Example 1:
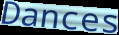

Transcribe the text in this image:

Dances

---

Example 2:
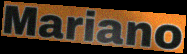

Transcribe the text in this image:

Mariano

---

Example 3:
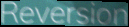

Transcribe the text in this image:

Reversion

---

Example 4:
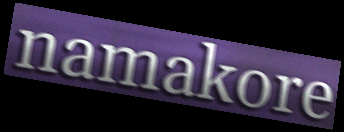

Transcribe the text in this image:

namakore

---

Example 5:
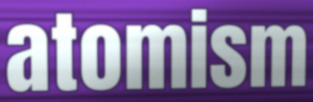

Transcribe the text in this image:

atomism